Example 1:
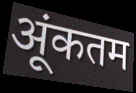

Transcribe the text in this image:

अूंकतम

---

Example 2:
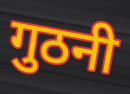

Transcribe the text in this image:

गुठनी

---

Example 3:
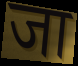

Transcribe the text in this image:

जा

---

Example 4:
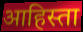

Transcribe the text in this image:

आहिस्‍ता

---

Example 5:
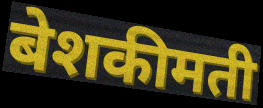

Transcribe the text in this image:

बेशकीमती